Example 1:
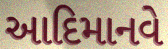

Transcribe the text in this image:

આદિમાનવે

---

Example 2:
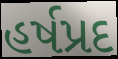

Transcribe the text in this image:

હર્ષપ્રદ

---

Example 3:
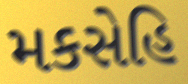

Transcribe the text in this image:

મકસેહિ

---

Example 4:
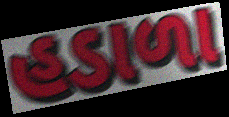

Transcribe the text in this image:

હડાળા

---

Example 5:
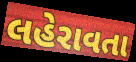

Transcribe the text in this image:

લહેરાવતા